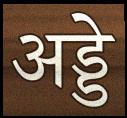
अड्डे